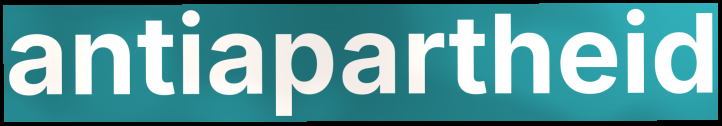
antiapartheid